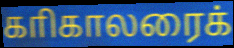
கரிகாலரைக்